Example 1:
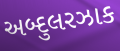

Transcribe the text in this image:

અબ્દુલરઝાક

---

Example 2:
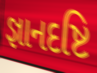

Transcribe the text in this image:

જ્ઞાનદષ્ટિ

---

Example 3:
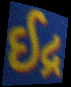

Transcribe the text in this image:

ઈદ્ર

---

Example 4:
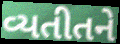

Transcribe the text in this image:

વ્યતીતને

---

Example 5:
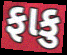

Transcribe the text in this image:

ફાકુ